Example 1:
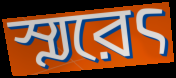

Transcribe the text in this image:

স্মরেৎ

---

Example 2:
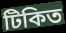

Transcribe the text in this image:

টিকিত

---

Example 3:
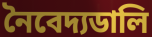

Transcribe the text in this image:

নৈবেদ্যডালি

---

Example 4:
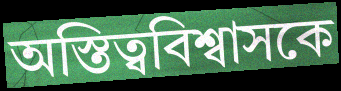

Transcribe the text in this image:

অস্তিত্ববিশ্বাসকে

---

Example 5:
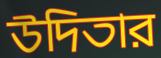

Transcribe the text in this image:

উদিতার